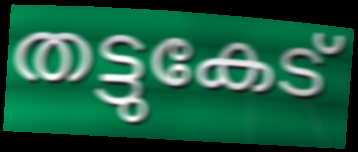
തട്ടുകേട്